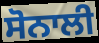
ਸੋਨਾਲੀ